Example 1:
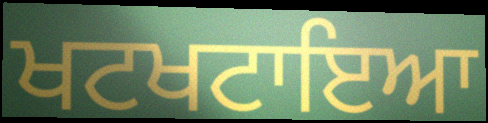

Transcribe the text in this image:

ਖਟਖਟਾਇਆ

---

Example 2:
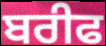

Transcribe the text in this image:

ਬਰੀਫ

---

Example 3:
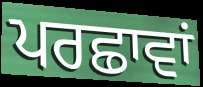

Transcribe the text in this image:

ਪਰਛਾਵਾਂ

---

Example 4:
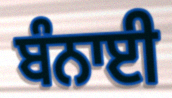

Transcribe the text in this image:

ਬੰਨਾਈ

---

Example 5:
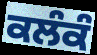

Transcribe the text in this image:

ਕਲੰਕੰ